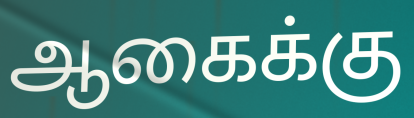
ஆகைக்கு